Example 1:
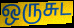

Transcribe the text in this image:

ஒருசுட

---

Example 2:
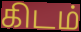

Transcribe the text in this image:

கிடம்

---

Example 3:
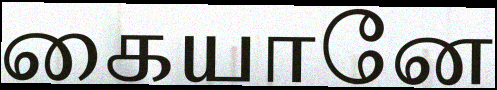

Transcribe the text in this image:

கையானே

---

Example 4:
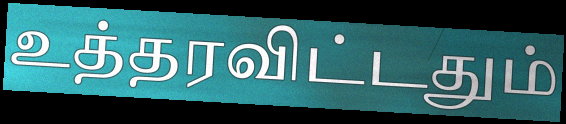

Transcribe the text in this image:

உத்தரவிட்டதும்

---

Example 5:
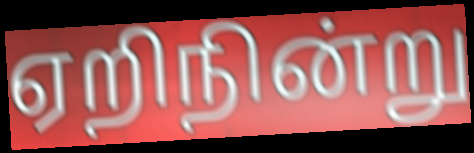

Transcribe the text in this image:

ஏறிநின்று